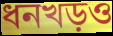
ধনখড়ও